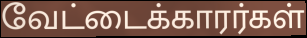
வேட்டைக்காரர்கள்